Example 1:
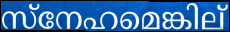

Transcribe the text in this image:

സ്നേഹമെങ്കില്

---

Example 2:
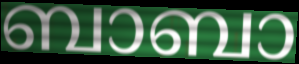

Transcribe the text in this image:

ബാബാ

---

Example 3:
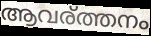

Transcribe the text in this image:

ആവര്ത്തനം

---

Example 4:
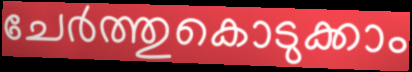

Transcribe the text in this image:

ചേർത്തുകൊടുക്കാം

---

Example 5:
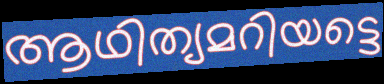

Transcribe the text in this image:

ആഥിത്യമറിയട്ടെ